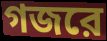
গজরে